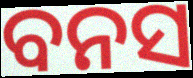
ବନସ